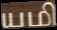
யமி